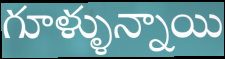
గూళ్ళున్నాయి